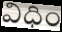
విధిం